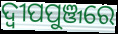
ଦ୍ୱୀପପୁଞ୍ଜରେ